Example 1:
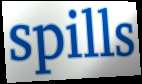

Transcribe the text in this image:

spills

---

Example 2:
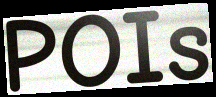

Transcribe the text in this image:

POIs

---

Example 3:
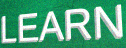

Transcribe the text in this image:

LEARN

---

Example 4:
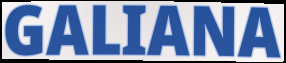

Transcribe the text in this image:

GALIANA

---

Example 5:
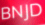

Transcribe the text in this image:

BNJD